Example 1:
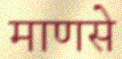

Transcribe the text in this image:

माणसे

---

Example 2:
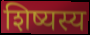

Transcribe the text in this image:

शिष्यस्य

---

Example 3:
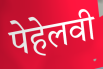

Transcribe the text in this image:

पेहेलवी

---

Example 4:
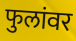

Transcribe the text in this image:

फुलांवर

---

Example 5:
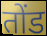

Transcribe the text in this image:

तोंड